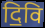
दि॒वि